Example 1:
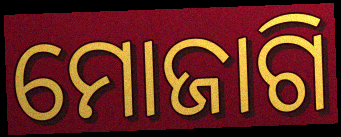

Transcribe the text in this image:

ମୋଜାଗି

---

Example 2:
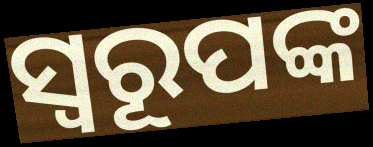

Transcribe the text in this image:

ସ୍ୱରୂପଙ୍କ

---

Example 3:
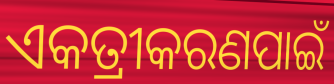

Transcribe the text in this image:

ଏକତ୍ରୀକରଣପାଇଁ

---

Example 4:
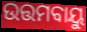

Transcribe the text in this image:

ଉତ୍ତମବାୟୁ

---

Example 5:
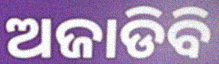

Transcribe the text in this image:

ଅଜାଡିବି